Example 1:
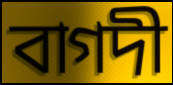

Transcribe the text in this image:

বাগদী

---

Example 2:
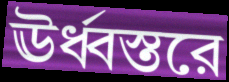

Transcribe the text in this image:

ঊর্ধ্বস্তরে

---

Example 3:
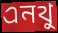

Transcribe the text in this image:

এনথু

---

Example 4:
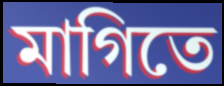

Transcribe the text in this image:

মাগিতে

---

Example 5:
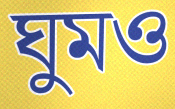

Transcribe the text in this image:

ঘুমও